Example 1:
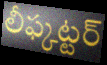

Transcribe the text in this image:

లీఫ్కట్టర్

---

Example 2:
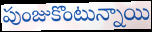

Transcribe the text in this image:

పుంజుకొంటున్నాయి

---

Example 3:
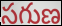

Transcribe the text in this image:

సగుణ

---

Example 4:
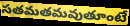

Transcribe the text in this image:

సతమతమవుతూంటే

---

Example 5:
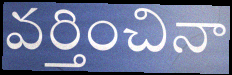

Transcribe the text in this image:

వర్తించినా